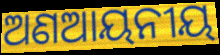
ଅଣଆୟନୀୟ